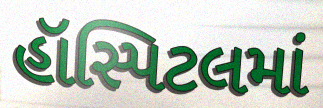
હૉસ્પિટલમાં